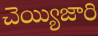
చెయ్యిజారి